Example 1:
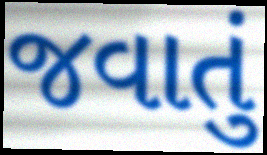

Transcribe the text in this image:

જવાતું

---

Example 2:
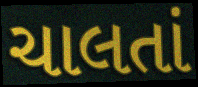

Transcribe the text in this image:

ચાલતાં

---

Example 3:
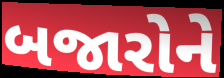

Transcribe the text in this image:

બજારોને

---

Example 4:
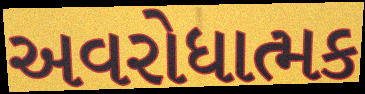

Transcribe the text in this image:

અવરોધાત્મક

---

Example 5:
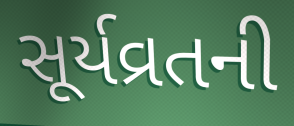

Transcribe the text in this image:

સૂર્યવ્રતની